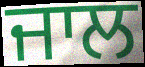
ਜਾਲ